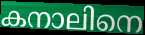
കനാലിനെ